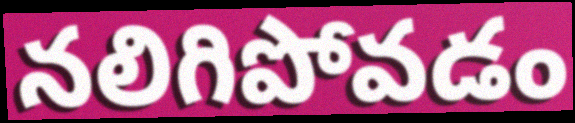
నలిగిపోవడం